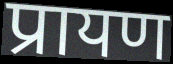
प्रायण